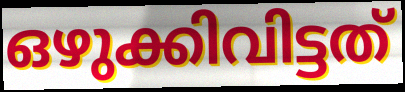
ഒഴുക്കിവിട്ടത്